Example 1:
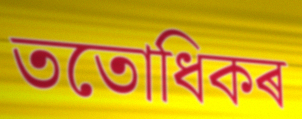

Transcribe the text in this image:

ততোধিকৰ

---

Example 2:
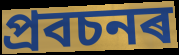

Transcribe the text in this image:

প্ৰবচনৰ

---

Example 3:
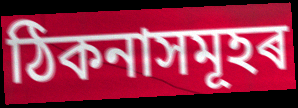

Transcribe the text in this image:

ঠিকনাসমূহৰ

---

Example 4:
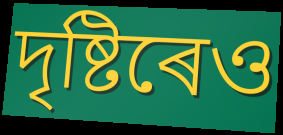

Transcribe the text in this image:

দৃষ্টিৰেও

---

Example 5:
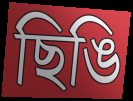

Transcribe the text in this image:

ছিঙি